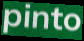
pinto